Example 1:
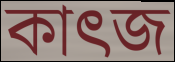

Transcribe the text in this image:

কাৎজ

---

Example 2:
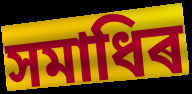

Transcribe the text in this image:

সমাধিৰ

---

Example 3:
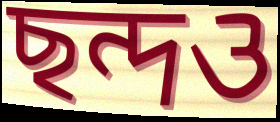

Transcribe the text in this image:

ছন্দও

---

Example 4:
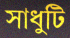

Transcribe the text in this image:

সাধুটি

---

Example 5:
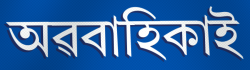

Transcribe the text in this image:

অৱবাহিকাই